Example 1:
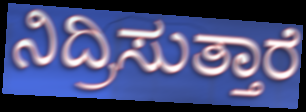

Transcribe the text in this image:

ನಿದ್ರಿಸುತ್ತಾರೆ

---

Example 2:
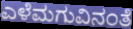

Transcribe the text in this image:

ಎಳೆಮಗುವಿನಂತೆ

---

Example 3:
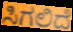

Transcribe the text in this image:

ಸಿಗಲಿದೆ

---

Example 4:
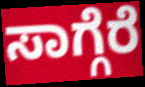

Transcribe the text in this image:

ಸಾಗ್ಗೆರೆ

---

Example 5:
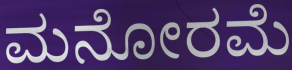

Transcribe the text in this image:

ಮನೋರಮೆ